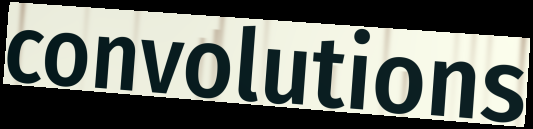
convolutions